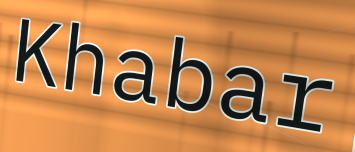
Khabar